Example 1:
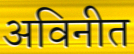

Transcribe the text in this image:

अविनीत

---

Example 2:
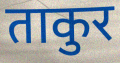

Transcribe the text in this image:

ताकुर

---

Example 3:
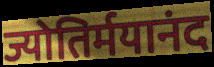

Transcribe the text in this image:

ज्योतिर्मयानंद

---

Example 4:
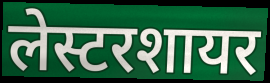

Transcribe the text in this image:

लेस्टरशायर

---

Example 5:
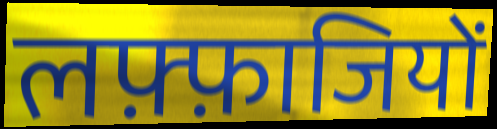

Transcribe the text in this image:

लफ़्फ़ाजियों